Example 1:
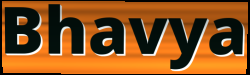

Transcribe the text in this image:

Bhavya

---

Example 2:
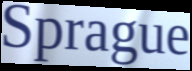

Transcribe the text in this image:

Sprague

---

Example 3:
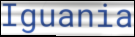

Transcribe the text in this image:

Iguania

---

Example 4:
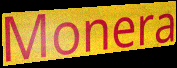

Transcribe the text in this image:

Monera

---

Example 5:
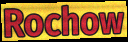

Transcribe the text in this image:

Rochow